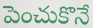
పెంచుకొనే